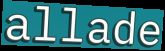
allade